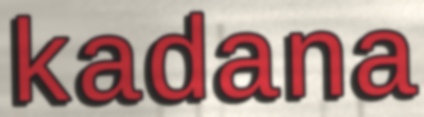
kadana